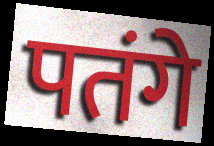
पतंगे